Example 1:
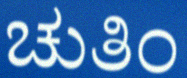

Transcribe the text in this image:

ಚುತಿಂ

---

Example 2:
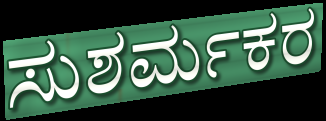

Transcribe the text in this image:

ಸುಶರ್ಮಕರ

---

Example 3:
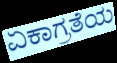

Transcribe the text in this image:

ಏಕಾಗ್ರತೆಯ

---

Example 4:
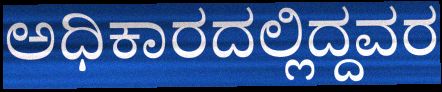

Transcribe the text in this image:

ಅಧಿಕಾರದಲ್ಲಿದ್ದವರ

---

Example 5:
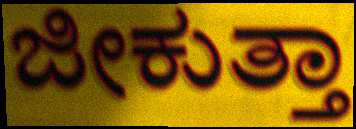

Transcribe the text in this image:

ಜೀಕುತ್ತಾ